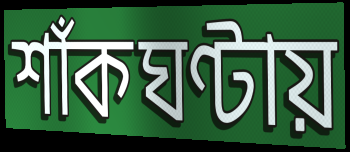
শাঁকঘণ্টায়